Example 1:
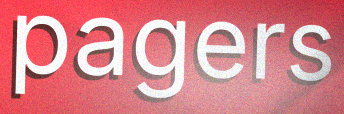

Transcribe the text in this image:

pagers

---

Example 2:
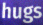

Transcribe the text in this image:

hugs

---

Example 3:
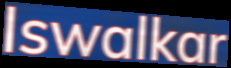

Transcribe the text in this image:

Iswalkar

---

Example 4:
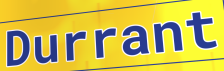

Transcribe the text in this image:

Durrant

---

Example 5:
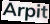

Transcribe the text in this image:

Arpit